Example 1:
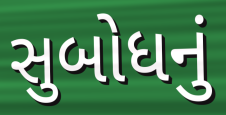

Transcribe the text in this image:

સુબોધનું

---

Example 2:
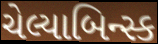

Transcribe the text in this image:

ચેલ્યાબિન્સ્ક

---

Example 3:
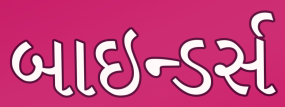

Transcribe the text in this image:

બાઇન્ડર્સ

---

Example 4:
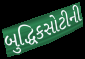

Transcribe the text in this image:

બુદ્ધિકસોટીની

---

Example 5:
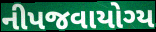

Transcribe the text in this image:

નીપજવાયોગ્ય